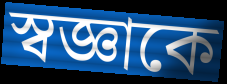
স্বজ্ঞাকে